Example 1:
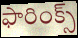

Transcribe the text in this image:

ఫారింక్స్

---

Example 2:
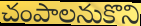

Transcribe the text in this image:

చంపాలనుకొని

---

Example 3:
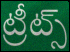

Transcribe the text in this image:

ట్రీట్స్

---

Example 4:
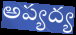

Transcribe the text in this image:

అప్యద్య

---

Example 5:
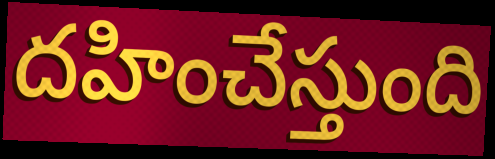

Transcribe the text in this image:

దహించేస్తుంది